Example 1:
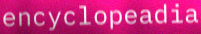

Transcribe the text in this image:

encyclopeadia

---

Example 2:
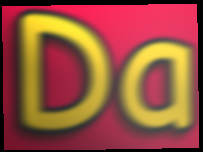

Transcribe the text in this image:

Da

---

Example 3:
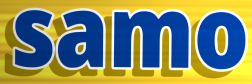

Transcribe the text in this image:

samo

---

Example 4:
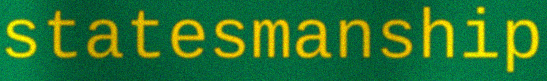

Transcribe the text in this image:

statesmanship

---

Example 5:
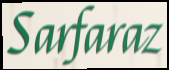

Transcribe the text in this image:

Sarfaraz